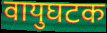
वायुघटक